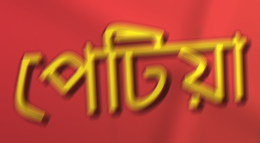
পেটিয়া